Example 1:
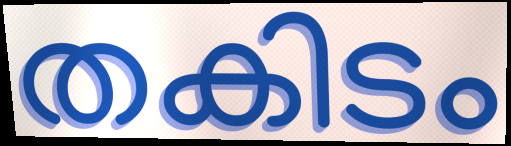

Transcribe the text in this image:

തകിടം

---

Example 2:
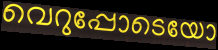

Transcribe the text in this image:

വെറുപ്പോടെയോ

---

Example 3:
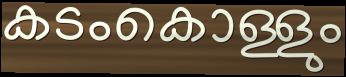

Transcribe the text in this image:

കടംകൊള്ളും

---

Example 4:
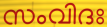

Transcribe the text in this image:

സംവിദഃ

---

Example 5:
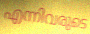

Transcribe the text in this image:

എന്നിവരുടെ